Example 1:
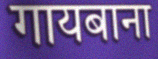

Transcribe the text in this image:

गायबाना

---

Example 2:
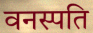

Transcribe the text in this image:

वनस्‍पति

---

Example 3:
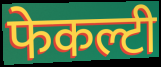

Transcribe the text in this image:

फेकल्टी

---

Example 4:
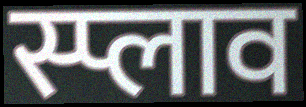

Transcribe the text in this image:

स्प्लाव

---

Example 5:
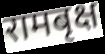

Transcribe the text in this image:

रामबृक्ष